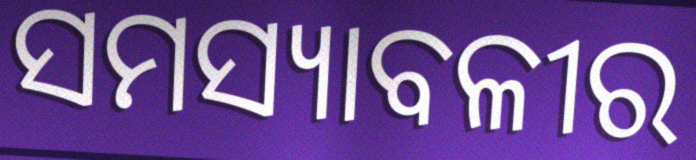
ସମସ୍ୟାବଳୀର